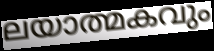
ലയാത്മകവും